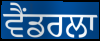
ਵੈਂਡਰਲਾ